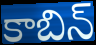
కాబిన్